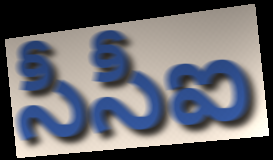
సీసీఐ